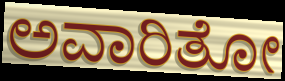
ಅವಾರಿತೋ